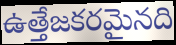
ఉత్తేజకరమైనది